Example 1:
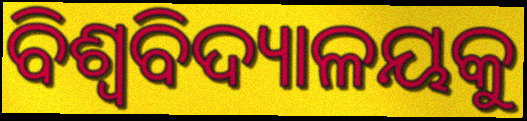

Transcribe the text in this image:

ବିଶ୍ବବିଦ୍ୟାଳୟକୁ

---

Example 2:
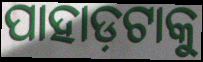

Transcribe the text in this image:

ପାହାଡ଼ଟାକୁ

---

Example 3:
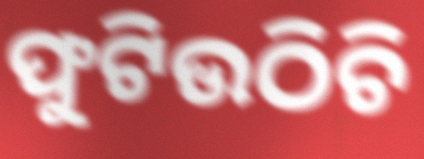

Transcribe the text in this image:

ଫୁଟିଉଠିଚି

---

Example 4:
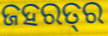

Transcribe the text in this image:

ଜହରତ୍‌ର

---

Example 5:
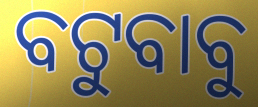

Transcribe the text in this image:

ବଟୁବାବୁ